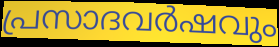
പ്രസാദവർഷവും